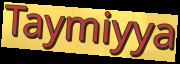
Taymiyya